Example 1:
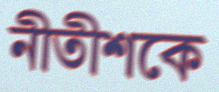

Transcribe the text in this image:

নীতীশকে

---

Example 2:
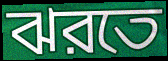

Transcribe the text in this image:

ঝরতে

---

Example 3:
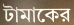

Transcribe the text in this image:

টামাকের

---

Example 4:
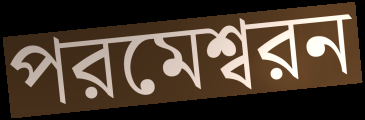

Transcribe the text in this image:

পরমেশ্বরন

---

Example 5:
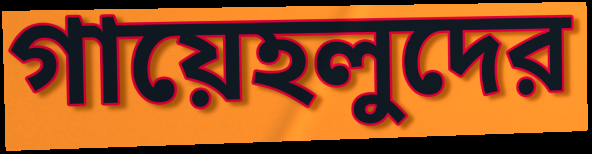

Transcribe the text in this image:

গায়েহলুদের